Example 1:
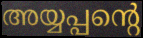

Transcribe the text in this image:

അയ്യപ്പന്റെ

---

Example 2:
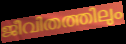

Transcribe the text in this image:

ജീവിതത്തിലും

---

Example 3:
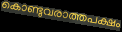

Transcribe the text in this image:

കൊണ്ടുവരാത്തപക്ഷം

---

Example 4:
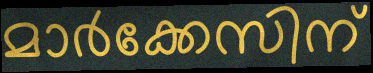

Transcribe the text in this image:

മാർക്കേസിന്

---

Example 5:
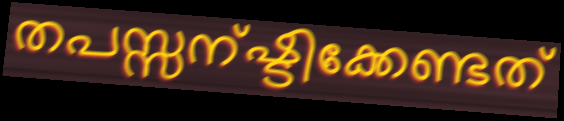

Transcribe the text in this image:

തപസ്സന്ഷ്ടിക്കേണ്ടത്